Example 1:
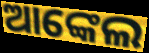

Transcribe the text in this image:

ଆଙ୍କେଲ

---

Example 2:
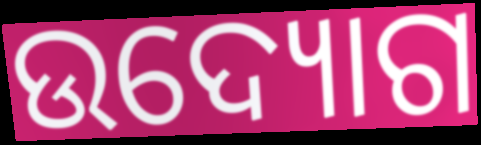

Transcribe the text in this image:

ଉଦ୍ୟୋଗ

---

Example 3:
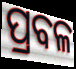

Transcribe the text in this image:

ପ୍ରବଳ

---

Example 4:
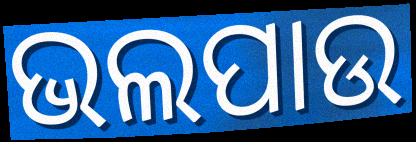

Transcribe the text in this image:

ଭଲପାଉ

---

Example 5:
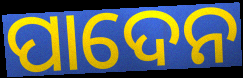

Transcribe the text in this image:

ପାଦେନ